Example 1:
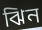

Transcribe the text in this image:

ঝিন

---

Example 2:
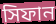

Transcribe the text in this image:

সিফান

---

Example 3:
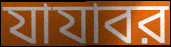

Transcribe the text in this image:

যাযাবর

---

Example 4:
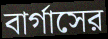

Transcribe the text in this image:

বার্গাসের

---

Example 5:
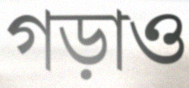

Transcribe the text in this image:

গড়াও